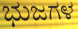
ಭುಜಗಳ